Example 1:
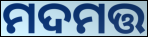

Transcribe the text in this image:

ମଦମତ୍ତ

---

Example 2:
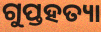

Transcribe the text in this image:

ଗୁପ୍ତହତ୍ୟା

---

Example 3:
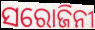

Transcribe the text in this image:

ସରୋଜିନୀ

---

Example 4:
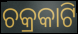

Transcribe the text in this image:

ଚକ୍ରକାଟି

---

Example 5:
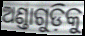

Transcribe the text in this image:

ଅଣ୍ଡାଗୁଡ଼ିକୁ